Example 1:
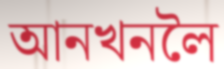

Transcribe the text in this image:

আনখনলৈ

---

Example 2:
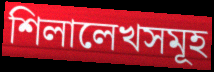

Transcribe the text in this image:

শিলালেখসমূহ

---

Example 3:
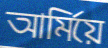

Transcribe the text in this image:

আৰ্মিয়ে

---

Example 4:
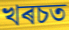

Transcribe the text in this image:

খৰচত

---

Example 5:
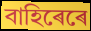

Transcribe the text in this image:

বাহিৰেৰে